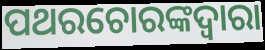
ପଥରଚୋରଙ୍କଦ୍ୱାରା